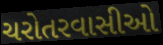
ચરોતરવાસીઓ